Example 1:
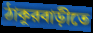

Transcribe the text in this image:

ঠাকুরবাড়ীতে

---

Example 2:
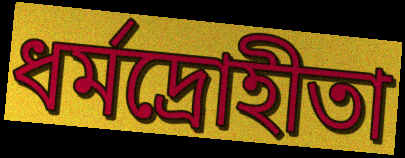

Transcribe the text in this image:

ধর্মদ্রোহীতা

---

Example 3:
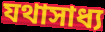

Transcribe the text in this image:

যথাসাধ্য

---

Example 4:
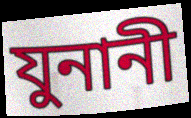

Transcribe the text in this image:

যুনানী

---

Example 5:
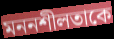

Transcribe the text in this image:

মননশীলতাকে